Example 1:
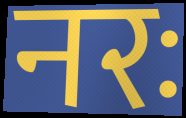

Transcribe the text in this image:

नरः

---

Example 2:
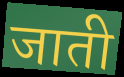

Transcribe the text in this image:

जाती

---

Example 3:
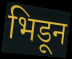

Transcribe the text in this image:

भिडून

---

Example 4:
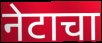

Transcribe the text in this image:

नेटाचा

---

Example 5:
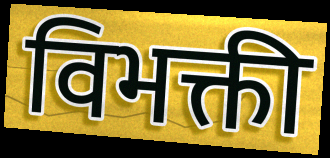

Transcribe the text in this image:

विभक्ती